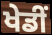
ਖੇਡੀਂ